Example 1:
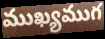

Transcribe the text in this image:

ముఖ్యముగ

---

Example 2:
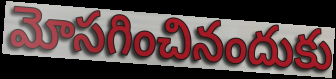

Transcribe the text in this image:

మోసగించినందుకు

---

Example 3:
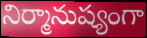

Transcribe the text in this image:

నిర్మానుష్యంగా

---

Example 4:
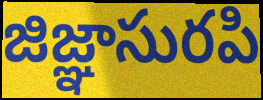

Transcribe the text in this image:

జిజ్ఞాసురపి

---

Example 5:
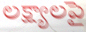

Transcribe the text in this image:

లక్ష్యాలపై